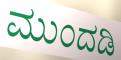
ಮುಂದಡಿ